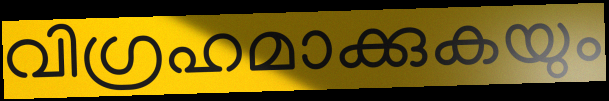
വിഗ്രഹമാക്കുകയും